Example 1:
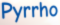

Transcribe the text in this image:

Pyrrho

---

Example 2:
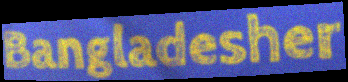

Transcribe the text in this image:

Bangladesher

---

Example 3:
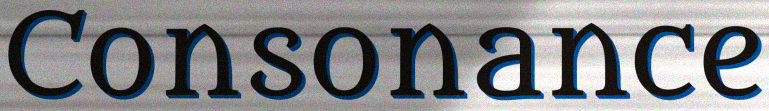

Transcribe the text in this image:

Consonance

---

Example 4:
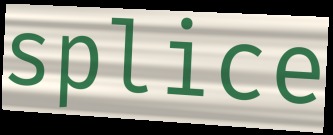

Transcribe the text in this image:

splice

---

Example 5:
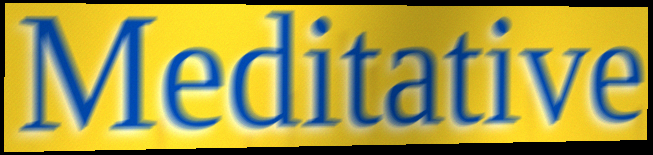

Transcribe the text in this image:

Meditative